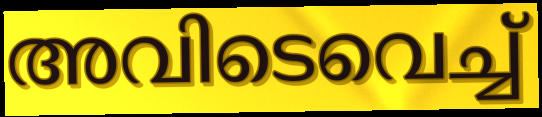
അവിടെവെച്ച്